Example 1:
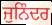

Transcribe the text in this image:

ਜੁਨਿੰਦਰ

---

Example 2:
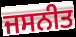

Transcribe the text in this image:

ਜਸਨੀਤ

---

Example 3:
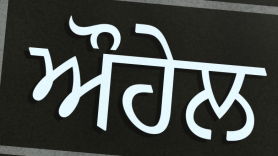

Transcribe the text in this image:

ਔਹੇਲ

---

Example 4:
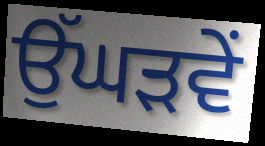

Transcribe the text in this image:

ਉੱਘੜਵੇਂ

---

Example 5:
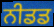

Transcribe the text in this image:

ਨੀਡਡ